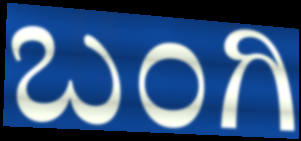
ಬಂಗಿ